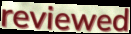
reviewed